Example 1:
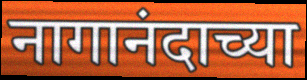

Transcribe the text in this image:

नागानंदाच्या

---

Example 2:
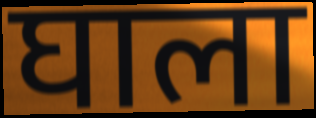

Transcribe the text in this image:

घाला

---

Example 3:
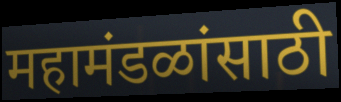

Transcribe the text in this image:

महामंडळांसाठी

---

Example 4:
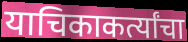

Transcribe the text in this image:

याचिकाकर्त्यांचा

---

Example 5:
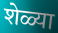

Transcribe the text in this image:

शेळ्या